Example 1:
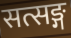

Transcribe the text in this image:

सत्सङ्ग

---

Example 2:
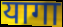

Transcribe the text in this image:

यागा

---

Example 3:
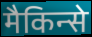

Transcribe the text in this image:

मैकिन्से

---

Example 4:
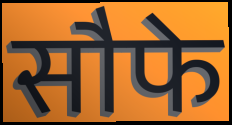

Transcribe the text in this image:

सौफे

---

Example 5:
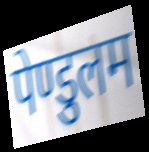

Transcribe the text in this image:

पेण्डुलम